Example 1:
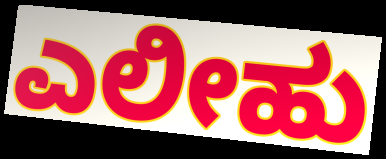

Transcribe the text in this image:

ಎಲೀಹು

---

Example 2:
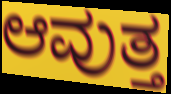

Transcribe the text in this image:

ಆವುತ್ತ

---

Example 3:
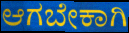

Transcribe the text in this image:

ಆಗಬೇಕಾಗಿ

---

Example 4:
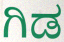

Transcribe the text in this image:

ಗಿಡ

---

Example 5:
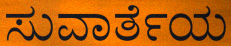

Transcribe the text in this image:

ಸುವಾರ್ತೆಯ